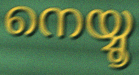
നെയ്യൂ